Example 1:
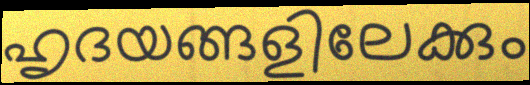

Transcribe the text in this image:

ഹൃദയങ്ങളിലേക്കും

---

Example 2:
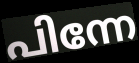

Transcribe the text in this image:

പിന്നേ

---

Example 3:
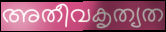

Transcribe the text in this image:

അതീവകൃത്യത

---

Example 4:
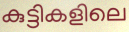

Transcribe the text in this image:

കുട്ടികളിലെ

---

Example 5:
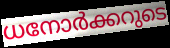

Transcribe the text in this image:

ധനോർക്കറുടെ